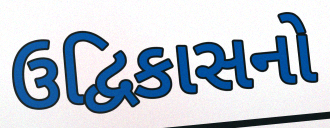
ઉદ્વિકાસનો